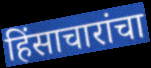
हिंसाचारांचा